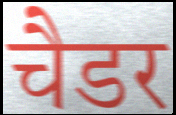
चैडर